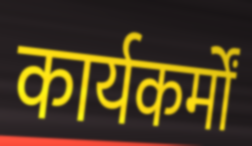
कार्यकर्मों